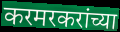
करमरकरांच्या